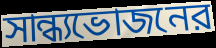
সান্ধ্যভোজনের